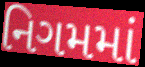
નિગમમાં